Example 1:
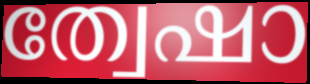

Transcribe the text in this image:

ത്വേഷാ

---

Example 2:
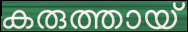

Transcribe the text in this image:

കരുത്തായ്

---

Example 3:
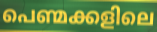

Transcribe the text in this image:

പെണ്മക്കളിലെ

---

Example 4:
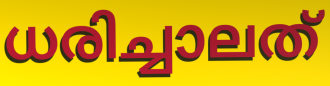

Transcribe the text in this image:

ധരിച്ചാലത്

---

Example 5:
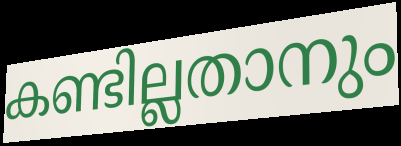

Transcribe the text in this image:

കണ്ടില്ലതാനും